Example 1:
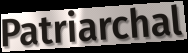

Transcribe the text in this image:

Patriarchal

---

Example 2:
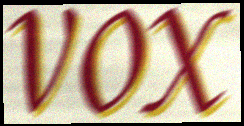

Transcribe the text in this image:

vox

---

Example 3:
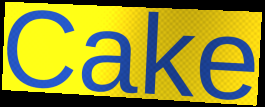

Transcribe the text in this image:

Cake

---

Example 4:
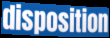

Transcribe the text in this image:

disposition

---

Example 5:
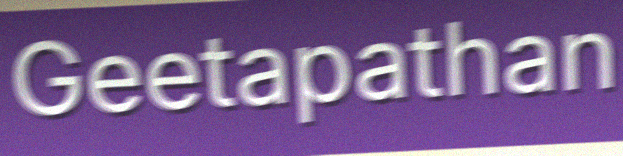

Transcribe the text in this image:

Geetapathan